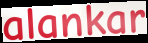
alankar